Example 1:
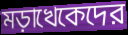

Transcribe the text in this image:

মড়াখেকেদের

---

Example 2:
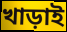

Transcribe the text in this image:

খাড়াই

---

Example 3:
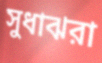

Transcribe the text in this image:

সুধাঝরা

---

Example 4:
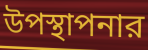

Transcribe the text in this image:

উপস্থাপনার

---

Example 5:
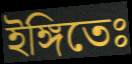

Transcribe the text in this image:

ইঙ্গিতেঃ